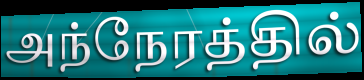
அந்நேரத்தில்